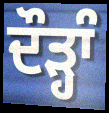
ਦੌੜ੍ਹਾੰ